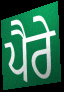
ਪੈਰੇ